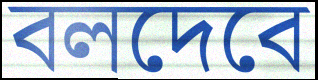
বলদেবে